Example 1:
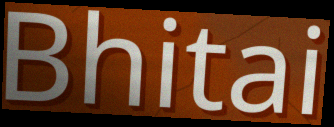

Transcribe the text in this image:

Bhitai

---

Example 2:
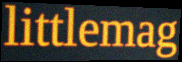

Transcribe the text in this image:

littlemag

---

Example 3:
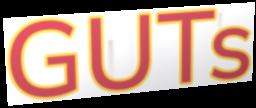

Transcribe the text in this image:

GUTs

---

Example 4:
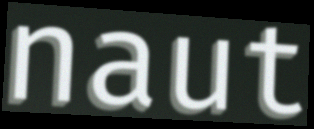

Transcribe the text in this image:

naut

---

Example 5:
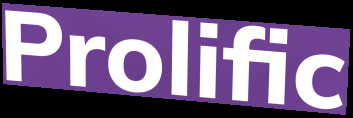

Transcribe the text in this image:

Prolific